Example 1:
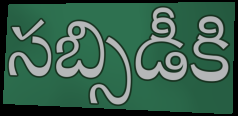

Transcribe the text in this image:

సబ్సిడీకి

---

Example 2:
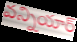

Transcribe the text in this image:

వన్నియార్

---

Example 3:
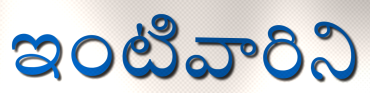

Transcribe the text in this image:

ఇంటివారిని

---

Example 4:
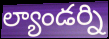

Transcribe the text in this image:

ల్యాండర్ని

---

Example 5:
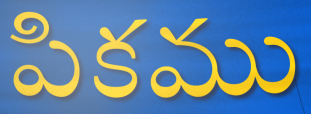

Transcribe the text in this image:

పికము